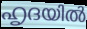
ഹൃദയിൽ